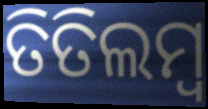
ତିତିଲମ୍ଵ